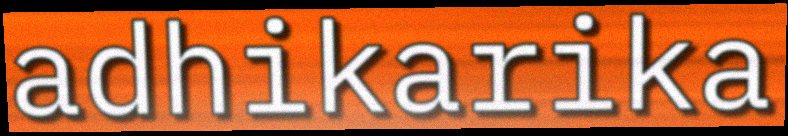
adhikarika